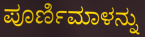
ಪೂರ್ಣಿಮಾಳನ್ನು